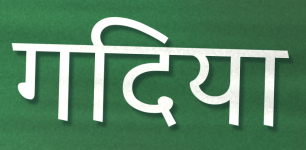
गदिया